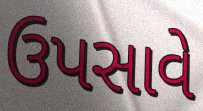
ઉપસાવે